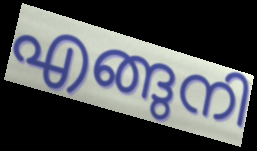
എങ്ങുനി